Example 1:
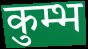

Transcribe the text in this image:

कुम्भ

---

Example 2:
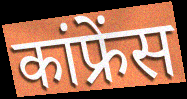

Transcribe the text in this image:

कांफ्रेंस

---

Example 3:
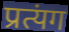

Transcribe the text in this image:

प्रत्यंग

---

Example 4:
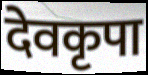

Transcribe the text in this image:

देवकृपा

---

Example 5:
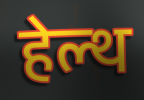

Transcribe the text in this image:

हेल्थ